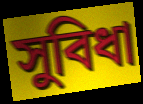
সুবিধা